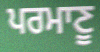
ਪਰਮਾਣੂ